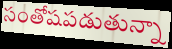
సంతోషపడుతున్నా